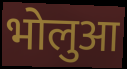
भोलुआ